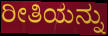
ರೀತಿಯನ್ನು